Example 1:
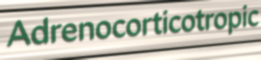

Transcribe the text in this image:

Adrenocorticotropic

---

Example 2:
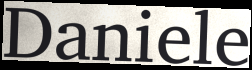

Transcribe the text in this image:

Daniele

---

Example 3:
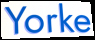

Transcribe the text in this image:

Yorke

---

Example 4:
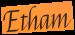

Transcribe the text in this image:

Etham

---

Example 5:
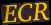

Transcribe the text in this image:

ECR